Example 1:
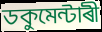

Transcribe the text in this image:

ডকুমেন্টাৰী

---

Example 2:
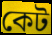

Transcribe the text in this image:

কেট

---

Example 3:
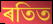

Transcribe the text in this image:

ৰতিত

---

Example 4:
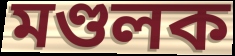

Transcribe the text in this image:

মণ্ডলক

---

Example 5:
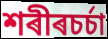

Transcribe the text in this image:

শৰীৰচৰ্চা